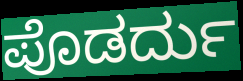
ಪೊಡರ್ದು